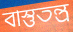
বাস্তুতন্ত্র